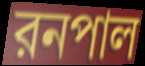
রনপাল